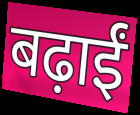
बढ़ाईं